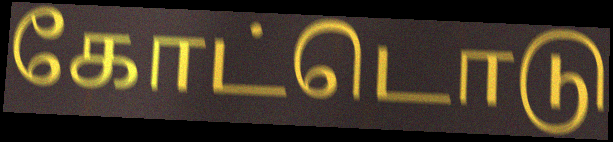
கோட்டொடு